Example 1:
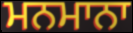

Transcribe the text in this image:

ਮਨਮਾਨਾ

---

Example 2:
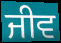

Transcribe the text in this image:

ਜੀਵ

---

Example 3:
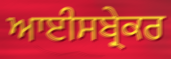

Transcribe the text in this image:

ਆਈਸਬ੍ਰੇਕਰ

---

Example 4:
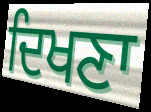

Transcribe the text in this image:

ਦਿਖਣਾ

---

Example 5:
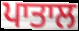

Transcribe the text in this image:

ਪਾਤਾਲ